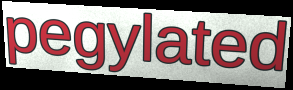
pegylated